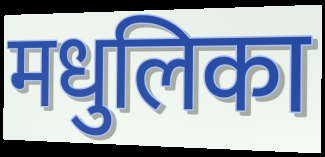
मधुलिका